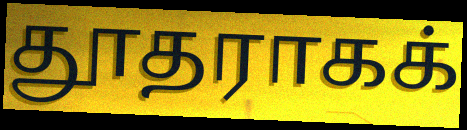
தூதராகக்